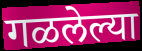
गळलेल्या